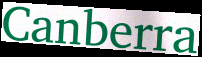
Canberra